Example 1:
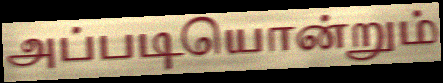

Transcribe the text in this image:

அப்படியொன்றும்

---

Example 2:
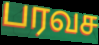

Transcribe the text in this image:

பரவச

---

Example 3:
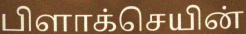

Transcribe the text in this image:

பிளாக்செயின்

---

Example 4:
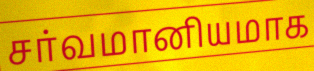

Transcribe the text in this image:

சர்வமானியமாக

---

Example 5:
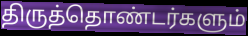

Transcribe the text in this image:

திருத்தொண்டர்களும்